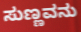
ಸುಣ್ಣವನು